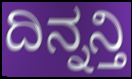
ದಿನ್ನನ್ತಿ